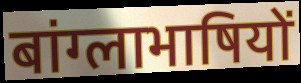
बांग्लाभाषियों